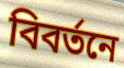
বিবর্তনে